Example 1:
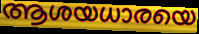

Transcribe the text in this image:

ആശയധാരയെ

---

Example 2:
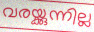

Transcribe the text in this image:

വരയ്ക്കുന്നില്ല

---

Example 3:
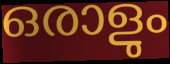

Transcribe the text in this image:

ഒരാളും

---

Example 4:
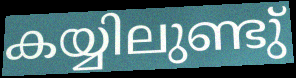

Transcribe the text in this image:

കയ്യിലുണ്ടു്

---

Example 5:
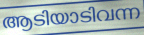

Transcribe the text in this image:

ആടിയാടിവന്ന